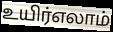
உயிர்எலாம்